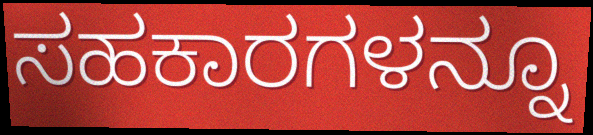
ಸಹಕಾರಗಳನ್ನೂ